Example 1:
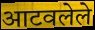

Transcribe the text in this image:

आटवलेले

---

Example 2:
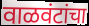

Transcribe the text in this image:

वाळवंटांचा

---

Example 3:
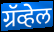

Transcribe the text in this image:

ग्रॅव्हेल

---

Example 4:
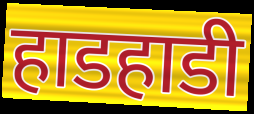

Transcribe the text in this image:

हाडहाडी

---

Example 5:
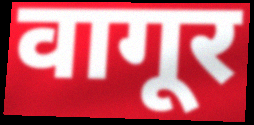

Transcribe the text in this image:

वागूर